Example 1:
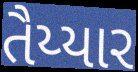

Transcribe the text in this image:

તૈય્યાર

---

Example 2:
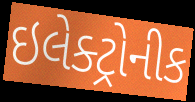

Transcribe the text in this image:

ઇલેક્ટ્રોનીક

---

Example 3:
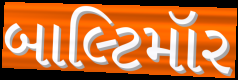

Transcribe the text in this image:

બાલ્ટિમૉર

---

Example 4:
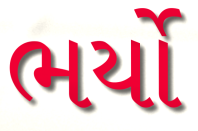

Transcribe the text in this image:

ભર્યો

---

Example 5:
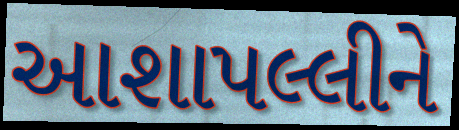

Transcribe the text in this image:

આશાપલ્લીને